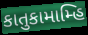
કાતુકામામ્હિ